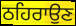
ਠਹਿਰਾਉਣ